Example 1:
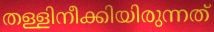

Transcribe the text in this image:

തള്ളിനീക്കിയിരുന്നത്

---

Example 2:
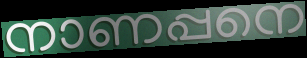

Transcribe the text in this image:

നാണപ്പനെ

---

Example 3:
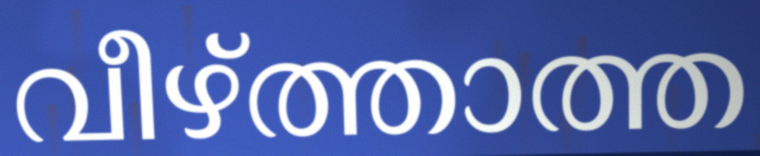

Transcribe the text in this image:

വീഴ്ത്താത്ത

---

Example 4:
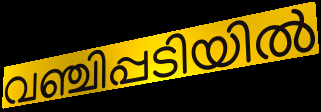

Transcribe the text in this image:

വഞ്ചിപ്പടിയിൽ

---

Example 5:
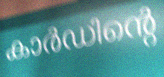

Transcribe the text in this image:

കാർഡിന്റെ